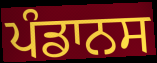
ਪੰਡਾਨਸ